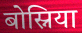
बोस्निया